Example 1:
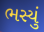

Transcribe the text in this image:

ભસ્યું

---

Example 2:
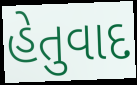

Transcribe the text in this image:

હેતુવાદ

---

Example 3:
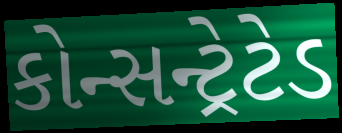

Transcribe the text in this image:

કોન્સન્ટ્રેટેડ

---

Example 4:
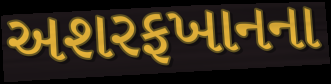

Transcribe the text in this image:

અશરફખાનના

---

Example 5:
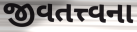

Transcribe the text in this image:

જીવતત્ત્વના